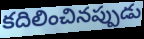
కదిలించినప్పుడు